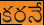
కరనే